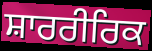
ਸ਼ਾਰਰੀਰਿਕ